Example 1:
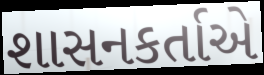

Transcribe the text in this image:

શાસનકર્તાએ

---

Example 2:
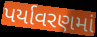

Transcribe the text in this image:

પર્યાવરણમાં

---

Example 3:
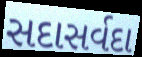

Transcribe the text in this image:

સદાસર્વદા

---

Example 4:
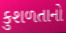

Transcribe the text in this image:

કુશળતાનો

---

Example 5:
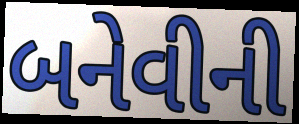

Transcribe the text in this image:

બનેવીની